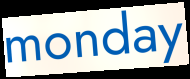
monday